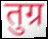
तुग्र